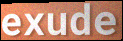
exude